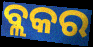
ବ୍ଲକର